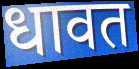
धावत